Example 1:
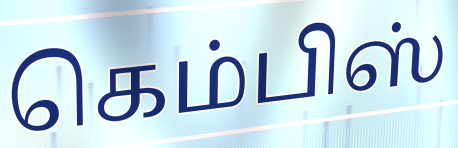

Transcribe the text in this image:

கெம்பிஸ்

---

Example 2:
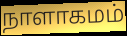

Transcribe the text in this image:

நாளாகமம்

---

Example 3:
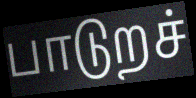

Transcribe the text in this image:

பாடுறச்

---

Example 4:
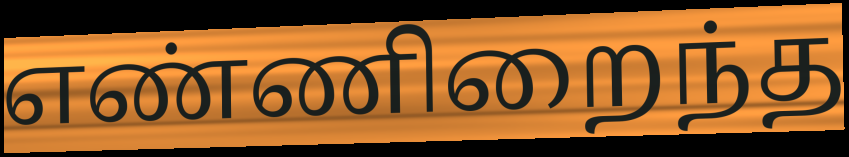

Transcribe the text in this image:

எண்ணிறைந்த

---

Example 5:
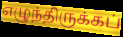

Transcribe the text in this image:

எழுந்திருக்கப்